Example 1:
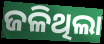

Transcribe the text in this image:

ଜଳିଥିଲା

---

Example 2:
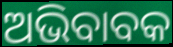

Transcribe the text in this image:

ଅଭିବାବକ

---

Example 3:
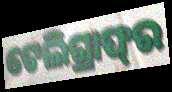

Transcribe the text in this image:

ଟେଲିଗ୍ରାଫ୍‌ର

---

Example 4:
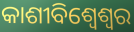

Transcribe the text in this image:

କାଶୀବିଶ୍ୱେଶ୍ୱର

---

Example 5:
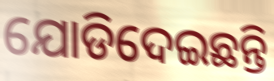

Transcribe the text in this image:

ଯୋଡିଦେଇଛନ୍ତି